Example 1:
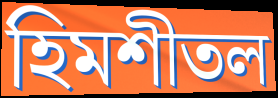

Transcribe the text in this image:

হিমশীতল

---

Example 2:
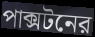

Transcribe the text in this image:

পাক্সটনের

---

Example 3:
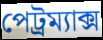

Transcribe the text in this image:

পেট্রম্যাক্স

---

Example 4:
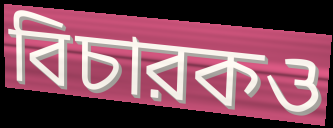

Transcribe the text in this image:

বিচারকও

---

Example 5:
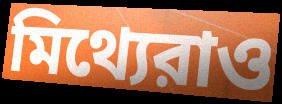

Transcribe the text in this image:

মিথ্যেরাও